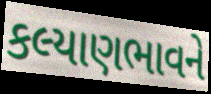
કલ્યાણભાવને